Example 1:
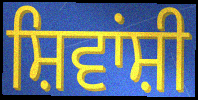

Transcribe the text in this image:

ਸ਼ਿਵਾਂਸ਼ੀ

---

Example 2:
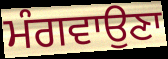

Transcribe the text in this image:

ਮੰਗਵਾਉਣਾ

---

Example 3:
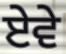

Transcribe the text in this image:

ਏਵੇ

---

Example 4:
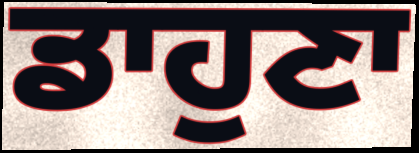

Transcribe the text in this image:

ਡਾਹੁਣਾ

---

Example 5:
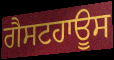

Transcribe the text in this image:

ਗੈਸਟਹਾਊਸ